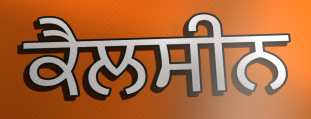
ਕੈਲਸੀਨ